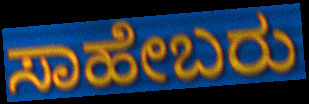
ಸಾಹೇಬರು